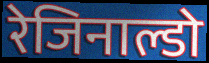
रेजिनाल्डो